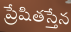
ప్రేషితస్తేన